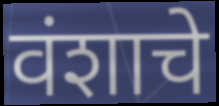
वंशाचे